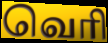
வெரி